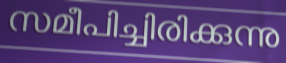
സമീപിച്ചിരിക്കുന്നു